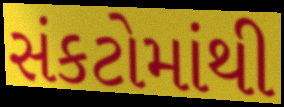
સંકટોમાંથી